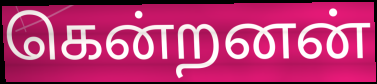
கென்றனன்